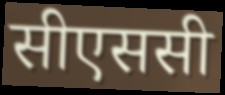
सीएससी